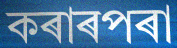
কৰাৰপৰা